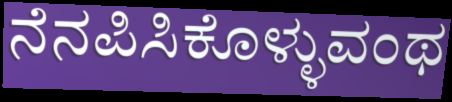
ನೆನಪಿಸಿಕೊಳ್ಳುವಂಥ